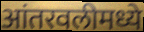
आंतरवलीमध्ये